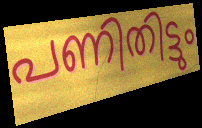
പണിതിട്ടും